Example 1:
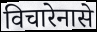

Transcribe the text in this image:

विचारेनासे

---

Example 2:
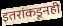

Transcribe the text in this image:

इतरांकडूनही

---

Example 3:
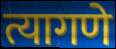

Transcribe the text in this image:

त्यागणे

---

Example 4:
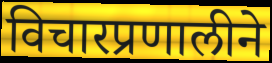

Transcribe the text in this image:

विचारप्रणालीने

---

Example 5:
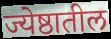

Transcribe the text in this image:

ज्येष्ठातील